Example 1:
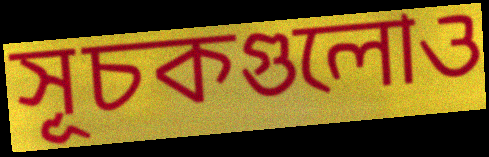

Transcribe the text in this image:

সূচকগুলোও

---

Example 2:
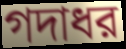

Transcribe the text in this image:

গদাধর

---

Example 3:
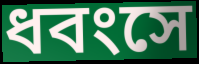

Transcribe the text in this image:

ধবংসে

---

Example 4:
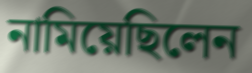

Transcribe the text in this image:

নামিয়েছিলেন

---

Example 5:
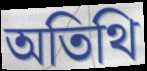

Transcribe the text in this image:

অতিথি